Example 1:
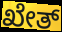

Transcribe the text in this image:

ಖೇತ್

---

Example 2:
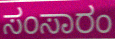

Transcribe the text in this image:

ಸಂಸಾರಂ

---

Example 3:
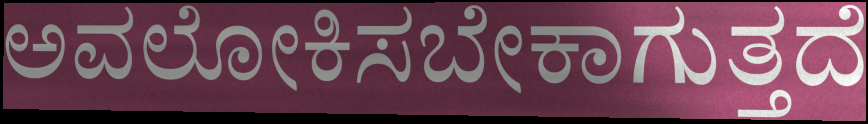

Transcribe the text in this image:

ಅವಲೋಕಿಸಬೇಕಾಗುತ್ತದೆ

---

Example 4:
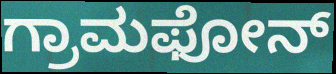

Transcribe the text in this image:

ಗ್ರಾಮಫೋನ್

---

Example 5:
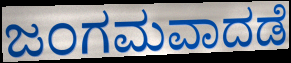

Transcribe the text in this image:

ಜಂಗಮವಾದಡೆ